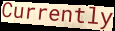
Currently